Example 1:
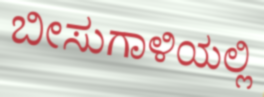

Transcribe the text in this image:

ಬೀಸುಗಾಳಿಯಲ್ಲಿ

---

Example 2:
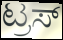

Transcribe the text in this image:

ಟ್ರಸ್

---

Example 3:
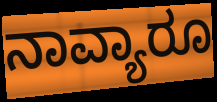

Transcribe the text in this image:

ನಾವ್ಯಾರೂ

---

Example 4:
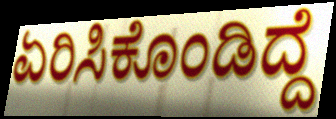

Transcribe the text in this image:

ಏರಿಸಿಕೊಂಡಿದ್ದೆ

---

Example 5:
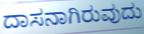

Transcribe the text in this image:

ದಾಸನಾಗಿರುವುದು